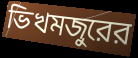
ভিখমজুরের